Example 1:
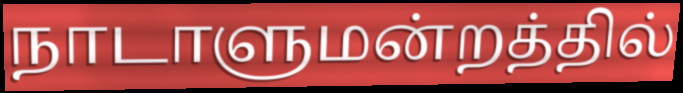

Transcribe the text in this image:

நாடாளுமன்றத்தில்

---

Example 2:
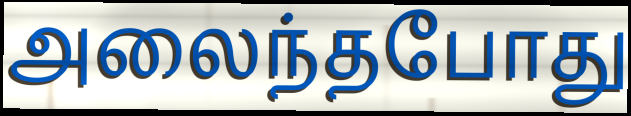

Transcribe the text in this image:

அலைந்தபோது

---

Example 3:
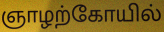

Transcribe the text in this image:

ஞாழற்கோயில்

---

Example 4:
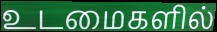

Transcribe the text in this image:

உடமைகளில்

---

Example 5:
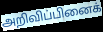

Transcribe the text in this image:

அறிவிப்பினைக்